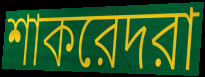
শাকরেদরা